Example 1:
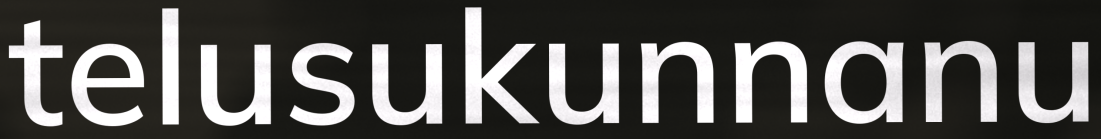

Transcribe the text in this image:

telusukunnanu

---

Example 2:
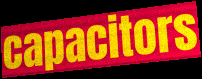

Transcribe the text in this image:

capacitors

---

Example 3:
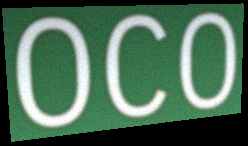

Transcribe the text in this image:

OCO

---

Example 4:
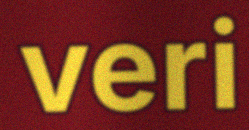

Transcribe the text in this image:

veri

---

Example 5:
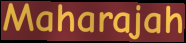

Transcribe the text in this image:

Maharajah